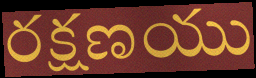
రక్షణయు